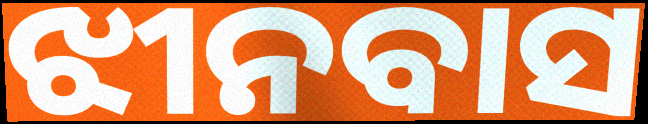
ଝୀନବାସ